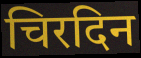
चिरदिन